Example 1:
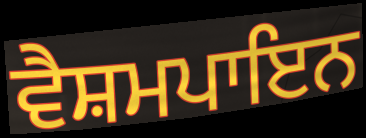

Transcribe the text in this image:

ਵੈਸ਼ਮਪਾਇਨ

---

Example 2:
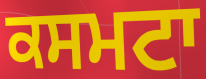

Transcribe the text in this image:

ਕਸਮਟਾ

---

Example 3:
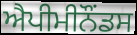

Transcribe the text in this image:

ਐਪੀਮੀਨੌਂਡਸ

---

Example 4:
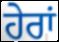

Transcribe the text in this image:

ਹੇਰਾਂ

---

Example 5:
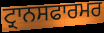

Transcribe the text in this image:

ਟ੍ਰਾਨਸਫਾਰਮਰ